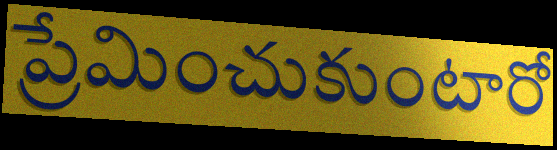
ప్రేమించుకుంటారో